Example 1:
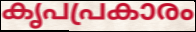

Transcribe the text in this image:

കൃപപ്രകാരം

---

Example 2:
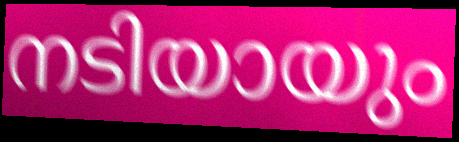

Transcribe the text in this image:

നടിയായും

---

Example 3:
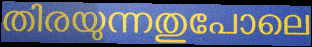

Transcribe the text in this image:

തിരയുന്നതുപോലെ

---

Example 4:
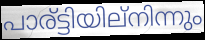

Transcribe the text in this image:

പാര്ട്ടിയില്നിന്നും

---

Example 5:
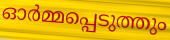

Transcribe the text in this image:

ഓർമ്മപ്പെടുത്തും